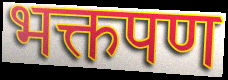
भक्तपण